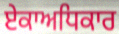
ਏਕਾਅਧਿਕਾਰ